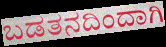
ಬಡತನದಿಂದಾಗಿ